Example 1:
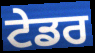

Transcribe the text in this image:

ਟੇਡਰ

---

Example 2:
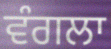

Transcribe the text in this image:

ਵੰਗਲਾ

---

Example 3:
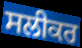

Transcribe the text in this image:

ਸਲੀਕਰ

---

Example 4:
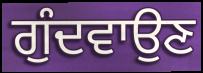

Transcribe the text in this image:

ਗੁੰਦਵਾਉਣ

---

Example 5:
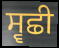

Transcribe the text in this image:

ਸ੍ਵਛੀ